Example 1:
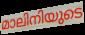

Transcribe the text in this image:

മാലിനിയുടെ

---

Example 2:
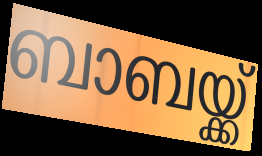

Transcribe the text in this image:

ബാബയ്ക്ക്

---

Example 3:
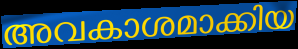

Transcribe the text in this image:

അവകാശമാക്കിയ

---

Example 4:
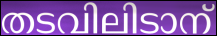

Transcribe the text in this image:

തടവിലിടാന്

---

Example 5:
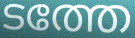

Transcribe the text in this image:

ടത്തേ